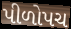
પીળોપચ